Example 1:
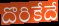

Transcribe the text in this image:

దొరికేదే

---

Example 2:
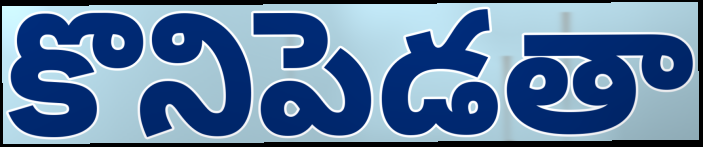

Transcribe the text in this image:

కొనిపెడతా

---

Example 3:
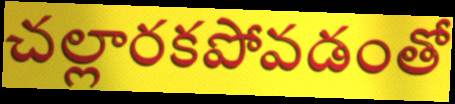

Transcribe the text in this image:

చల్లారకపోవడంతో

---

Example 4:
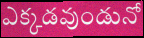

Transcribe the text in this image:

ఎక్కడవుండునో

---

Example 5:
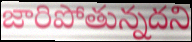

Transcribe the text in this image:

జారిపోతున్నదని